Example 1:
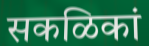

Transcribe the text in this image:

सकळिकां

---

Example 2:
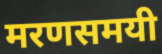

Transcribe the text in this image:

मरणसमयी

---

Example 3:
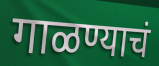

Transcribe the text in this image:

गाळण्याचं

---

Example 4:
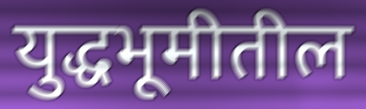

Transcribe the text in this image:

युद्धभूमीतील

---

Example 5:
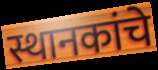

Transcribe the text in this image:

स्थानकांचे